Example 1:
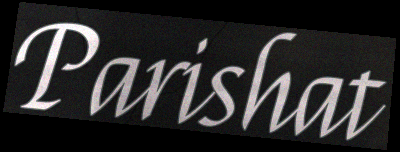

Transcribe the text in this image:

Parishat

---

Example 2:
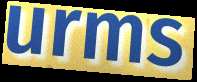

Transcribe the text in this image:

urms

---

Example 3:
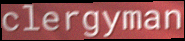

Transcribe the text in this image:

clergyman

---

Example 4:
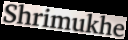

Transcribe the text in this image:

Shrimukhe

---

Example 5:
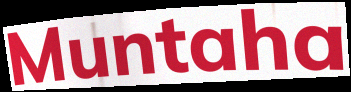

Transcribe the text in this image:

Muntaha